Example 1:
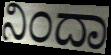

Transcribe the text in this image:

ನಿಂದಾ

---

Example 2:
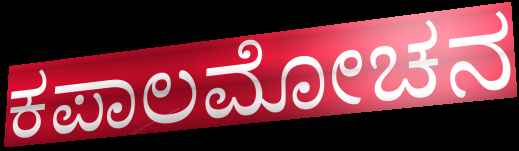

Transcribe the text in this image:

ಕಪಾಲಮೋಚನ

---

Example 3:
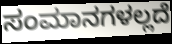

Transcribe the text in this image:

ಸಂಮಾನಗಳಲ್ಲದೆ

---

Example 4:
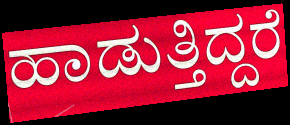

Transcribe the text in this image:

ಹಾಡುತ್ತಿದ್ದರೆ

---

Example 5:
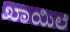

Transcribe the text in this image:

ಖಾಯಿಲೆ